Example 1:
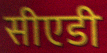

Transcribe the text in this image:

सीएडी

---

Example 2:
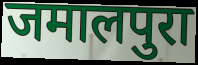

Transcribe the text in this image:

जमालपुरा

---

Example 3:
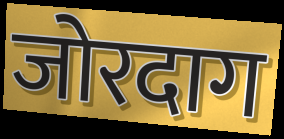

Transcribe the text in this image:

जोरदाग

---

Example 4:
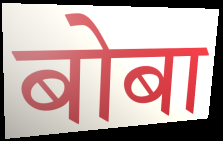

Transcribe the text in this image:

बोबा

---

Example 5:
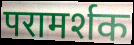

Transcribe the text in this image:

परामर्शक